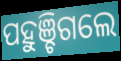
ପହୁଞ୍ଚିଗଲେ